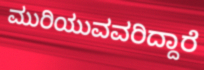
ಮುರಿಯುವವರಿದ್ದಾರೆ